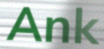
Ank